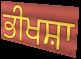
ਭੀਖਸ਼ਾ